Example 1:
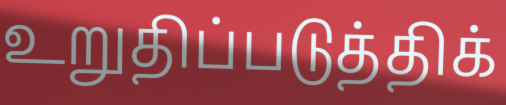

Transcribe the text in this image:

உறுதிப்படுத்திக்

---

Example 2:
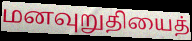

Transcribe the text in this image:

மனவுறுதியைத்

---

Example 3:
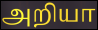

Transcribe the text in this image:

அறியா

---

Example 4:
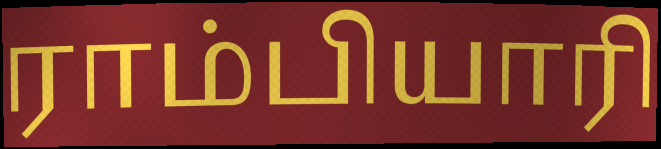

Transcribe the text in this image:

ராம்பியாரி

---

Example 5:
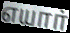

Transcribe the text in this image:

எயார்